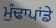
ਮੁੰਢਾਪਾਂਡੇ